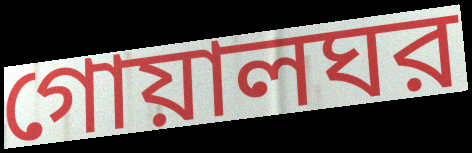
গোয়ালঘর